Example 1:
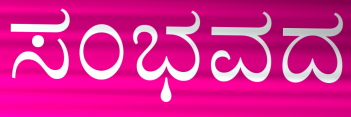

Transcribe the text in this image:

ಸಂಭವದ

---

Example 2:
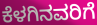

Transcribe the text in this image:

ಕೆಳಗಿನವರಿಗೆ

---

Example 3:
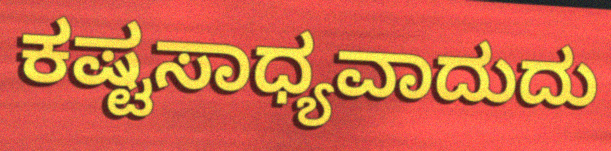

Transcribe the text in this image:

ಕಷ್ಟಸಾಧ್ಯವಾದುದು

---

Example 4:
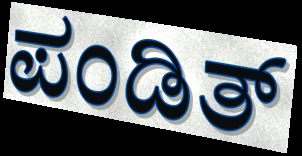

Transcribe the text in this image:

ಪಂಡಿತ್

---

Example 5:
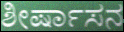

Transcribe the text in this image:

ಶೀರ್ಷಾಸನ